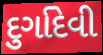
દુર્ગાદેવી